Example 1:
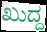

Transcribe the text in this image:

ಖುದ್ದ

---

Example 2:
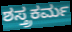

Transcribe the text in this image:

ಶಸ್ತ್ರಕರ್ಮ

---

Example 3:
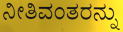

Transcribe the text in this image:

ನೀತಿವಂತರನ್ನು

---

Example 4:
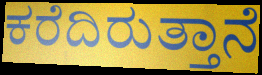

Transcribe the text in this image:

ಕರೆದಿರುತ್ತಾನೆ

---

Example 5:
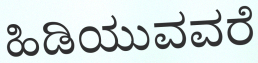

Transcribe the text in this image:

ಹಿಡಿಯುವವರೆ